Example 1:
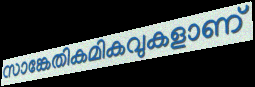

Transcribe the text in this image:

സാങ്കേതികമികവുകളാണ്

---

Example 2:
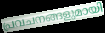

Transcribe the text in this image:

പ്രവചനങ്ങളുമായി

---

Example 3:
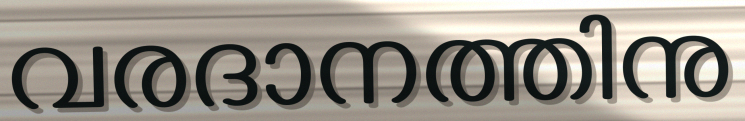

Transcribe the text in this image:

വരദാനത്തിനു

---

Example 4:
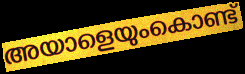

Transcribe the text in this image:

അയാളെയുംകൊണ്ട്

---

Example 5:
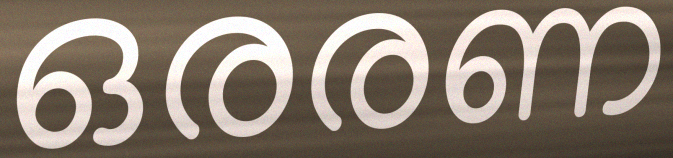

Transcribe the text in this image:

ഒരരണ